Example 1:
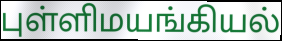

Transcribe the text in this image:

புள்ளிமயங்கியல்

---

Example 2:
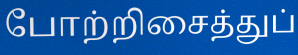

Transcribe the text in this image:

போற்றிசைத்துப்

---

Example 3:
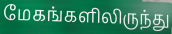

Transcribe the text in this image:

மேகங்களிலிருந்து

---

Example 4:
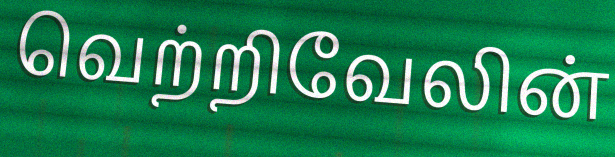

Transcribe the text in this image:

வெற்றிவேலின்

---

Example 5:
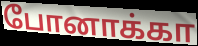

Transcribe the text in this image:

போனாக்கா